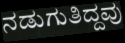
ನಡುಗುತಿದ್ದವು